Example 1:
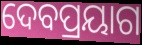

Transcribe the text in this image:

ଦେବପ୍ରୟାଗ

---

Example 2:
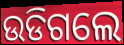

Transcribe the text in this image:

ଉଡିଗଲେ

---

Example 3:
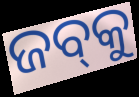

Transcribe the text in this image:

ଜବ୍‍କୁ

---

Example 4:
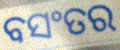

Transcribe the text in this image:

ବସଂତର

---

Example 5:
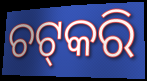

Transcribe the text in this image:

ଚଟ୍‌କରି